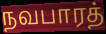
நவபாரத்